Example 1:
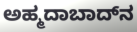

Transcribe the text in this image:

ಅಹ್ಮದಾಬಾದ್‌ನ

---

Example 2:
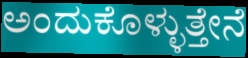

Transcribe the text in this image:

ಅಂದುಕೊಳ್ಳುತ್ತೇನೆ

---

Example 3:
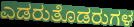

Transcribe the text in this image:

ಎಡರುತೊಡರುಗಳ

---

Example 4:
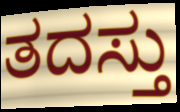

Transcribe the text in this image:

ತದಸ್ತು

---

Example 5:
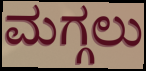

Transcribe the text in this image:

ಮಗ್ಗಲು